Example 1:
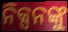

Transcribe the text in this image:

ନିକ୍ସନଙ୍କୁ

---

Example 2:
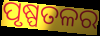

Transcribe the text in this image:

ପୃଷ୍ପତଳର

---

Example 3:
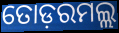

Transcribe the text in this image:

ତୋଡ଼ରମଲ୍ଲ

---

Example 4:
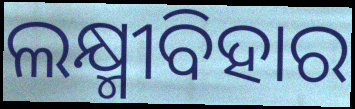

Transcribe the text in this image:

ଲକ୍ଷ୍ମୀବିହାର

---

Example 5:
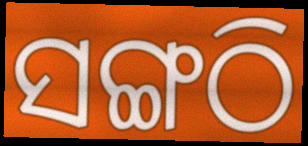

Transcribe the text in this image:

ସଙ୍ଗଠି